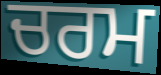
ਚਰਮ